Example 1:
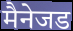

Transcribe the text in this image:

मैनेजड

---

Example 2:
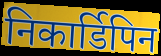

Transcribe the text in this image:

निकार्डिपिन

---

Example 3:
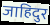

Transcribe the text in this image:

जाहिदुर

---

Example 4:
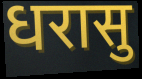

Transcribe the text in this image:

धरासु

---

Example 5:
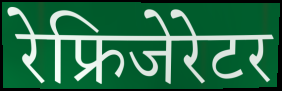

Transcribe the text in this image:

रेफ्रिजेरेटर